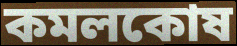
কমলকোষ